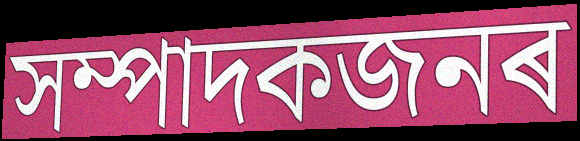
সম্পাদকজনৰ